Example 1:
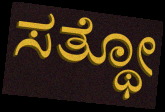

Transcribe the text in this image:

ಸತ್ಥೋ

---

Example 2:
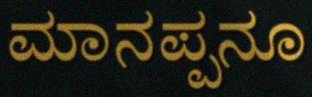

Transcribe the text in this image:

ಮಾನಪ್ಪನೂ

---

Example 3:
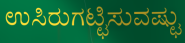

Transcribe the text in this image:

ಉಸಿರುಗಟ್ಟಿಸುವಷ್ಟು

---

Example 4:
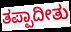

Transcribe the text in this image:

ತಪ್ಪಾದೀತು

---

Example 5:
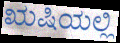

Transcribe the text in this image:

ಋಷಿಯಲ್ಲಿ